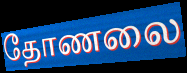
தோணலை